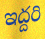
ఇద్దరి